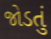
જોડતું